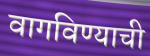
वागविण्याची